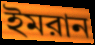
ইমরান